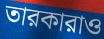
তারকারাও